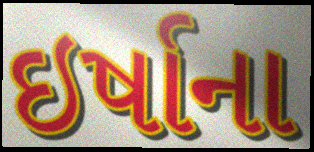
ઇર્ષાના